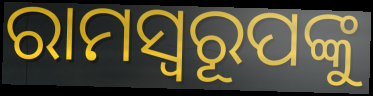
ରାମସ୍ୱରୂପଙ୍କୁ